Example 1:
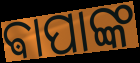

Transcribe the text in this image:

ଵାପାଙ୍କ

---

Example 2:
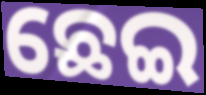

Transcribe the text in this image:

ଛେଇ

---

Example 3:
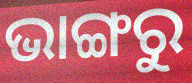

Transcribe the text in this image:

ଭାଙ୍ଗରୁ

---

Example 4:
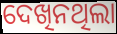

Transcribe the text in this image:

ଦେଖିନଥିଲା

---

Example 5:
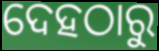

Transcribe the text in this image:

ଦେହଠାରୁ